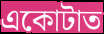
একোটাত